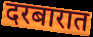
दरबारात